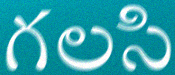
గలసి